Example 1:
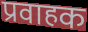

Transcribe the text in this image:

प्रवाहक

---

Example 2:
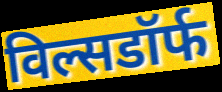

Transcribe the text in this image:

विल्सडॉर्फ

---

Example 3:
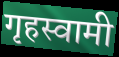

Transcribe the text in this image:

गृहस्वामी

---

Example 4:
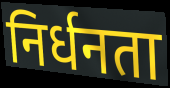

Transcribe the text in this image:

निर्धनता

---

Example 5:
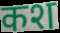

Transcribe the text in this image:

कश